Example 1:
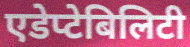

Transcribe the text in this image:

एडेप्टेबिलिटी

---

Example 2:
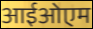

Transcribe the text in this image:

आईओएम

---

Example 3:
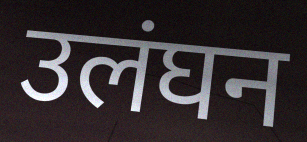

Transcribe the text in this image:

उलंघन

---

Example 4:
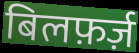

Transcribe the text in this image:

बिलफ़र्ज़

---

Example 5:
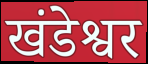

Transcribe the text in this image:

खंडेश्वर